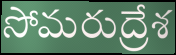
సోమరుద్రేశ